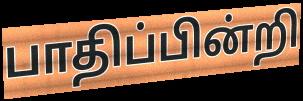
பாதிப்பின்றி